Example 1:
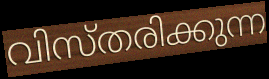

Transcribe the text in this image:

വിസ്തരിക്കുന്ന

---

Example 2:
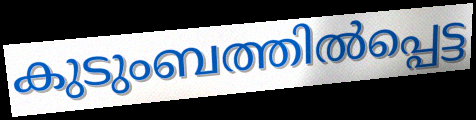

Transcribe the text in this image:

കുടുംബത്തിൽപ്പെട്ട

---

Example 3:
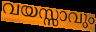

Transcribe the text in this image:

വയസ്സാവും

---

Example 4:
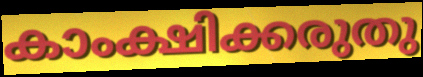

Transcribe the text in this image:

കാംക്ഷിക്കരുതു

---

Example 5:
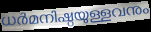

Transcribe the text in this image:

ധർമനിഷ്ഠയുള്ളവനും